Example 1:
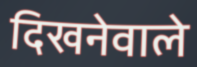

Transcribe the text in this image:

दिखनेवाले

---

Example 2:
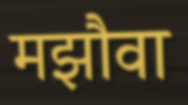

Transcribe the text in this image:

मझौवा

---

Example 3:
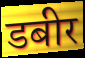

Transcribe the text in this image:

डबीर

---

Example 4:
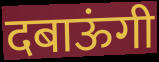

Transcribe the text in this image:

दबाऊंगी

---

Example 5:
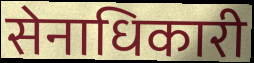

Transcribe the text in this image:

सेनाधिकारी